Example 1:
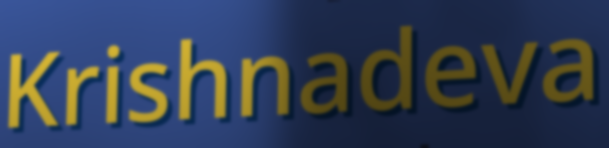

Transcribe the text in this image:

Krishnadeva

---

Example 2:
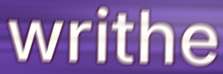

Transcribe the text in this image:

writhe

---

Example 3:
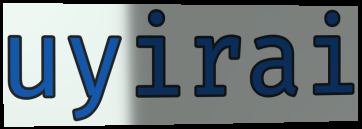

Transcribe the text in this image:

uyirai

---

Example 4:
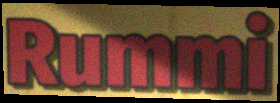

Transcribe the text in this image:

Rummi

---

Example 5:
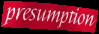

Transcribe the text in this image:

presumption